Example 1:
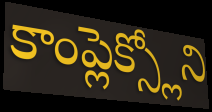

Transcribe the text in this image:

కాంప్లెక్స్లోని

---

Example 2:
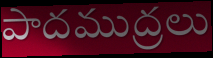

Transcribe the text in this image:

పాదముద్రలు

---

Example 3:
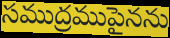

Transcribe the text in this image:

సముద్రముపైనను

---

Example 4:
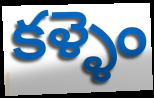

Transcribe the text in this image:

కళ్ళెం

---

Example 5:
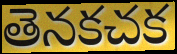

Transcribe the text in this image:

తెనకచక